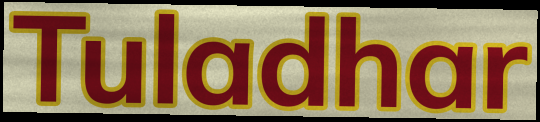
Tuladhar